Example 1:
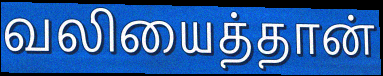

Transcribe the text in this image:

வலியைத்தான்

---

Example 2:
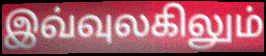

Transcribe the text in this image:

இவ்வுலகிலும்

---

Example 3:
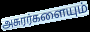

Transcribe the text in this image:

அசுரர்களையும்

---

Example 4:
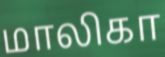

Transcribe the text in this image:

மாலிகா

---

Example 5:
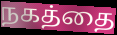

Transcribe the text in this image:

நகத்தை